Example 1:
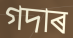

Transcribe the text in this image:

গদাৰ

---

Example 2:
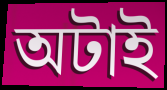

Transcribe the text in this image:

অটাই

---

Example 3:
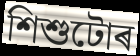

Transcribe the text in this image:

শিশুটোৰ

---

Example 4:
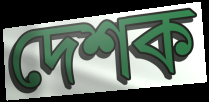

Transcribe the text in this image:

দেশক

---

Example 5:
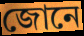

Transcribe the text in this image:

জোনে